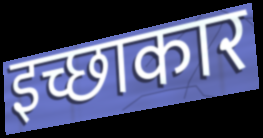
इच्छाकार